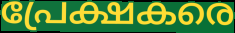
പ്രേക്ഷകരെ